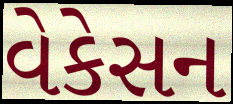
વેકેસન